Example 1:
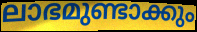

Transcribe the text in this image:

ലാഭമുണ്ടാക്കും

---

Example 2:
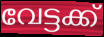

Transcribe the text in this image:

വേട്ടക്ക്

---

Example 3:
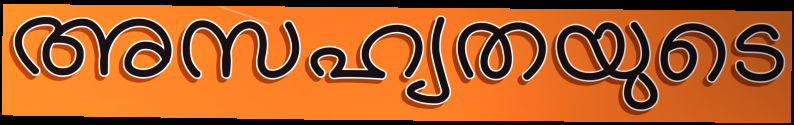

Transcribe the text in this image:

അസഹ്യതയുടെ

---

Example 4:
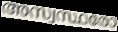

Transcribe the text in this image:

അസ്വസ്ഥരോ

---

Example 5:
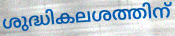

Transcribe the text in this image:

ശുദ്ധികലശത്തിന്